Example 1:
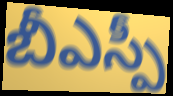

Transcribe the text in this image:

బీఎస్పీ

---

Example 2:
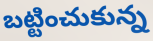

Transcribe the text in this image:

బట్టించుకున్న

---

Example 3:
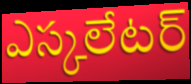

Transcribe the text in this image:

ఎస్కలేటర్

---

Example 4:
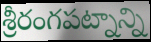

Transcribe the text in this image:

శ్రీరంగపట్నాన్ని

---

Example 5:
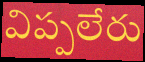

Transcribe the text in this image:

విప్పలేరు